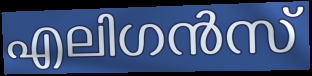
എലിഗൻസ്